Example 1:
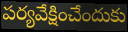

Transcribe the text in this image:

పర్యవేక్షించేందుకు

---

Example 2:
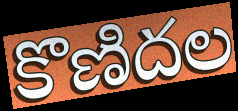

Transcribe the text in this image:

కొణిదల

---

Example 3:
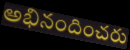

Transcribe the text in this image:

అభినందించరు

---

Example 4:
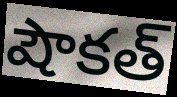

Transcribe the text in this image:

షౌకత్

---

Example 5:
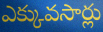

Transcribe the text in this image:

ఎక్కువసార్లు